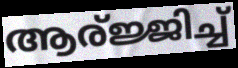
ആര്ജ്ജിച്ച്